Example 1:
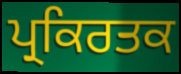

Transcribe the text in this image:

ਪ੍ਰਕਿਰਤਕ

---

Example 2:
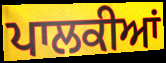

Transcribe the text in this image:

ਪਾਲਕੀਆਂ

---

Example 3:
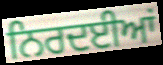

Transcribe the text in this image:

ਨਿਰਦਈਆਂ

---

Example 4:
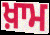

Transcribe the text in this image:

ਖ਼ਾਮ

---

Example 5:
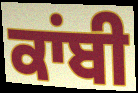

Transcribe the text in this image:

ਕਾਂਬੀ